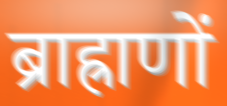
ब्राह्राणों